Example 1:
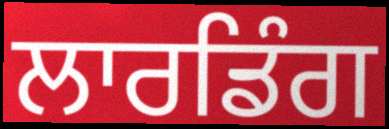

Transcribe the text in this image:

ਲਾਰਡਿੰਗ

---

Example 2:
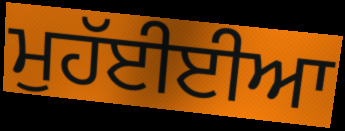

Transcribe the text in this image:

ਮੁਹੱਈਈਆ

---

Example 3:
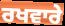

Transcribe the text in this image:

ਰਖਵਾਰੇ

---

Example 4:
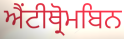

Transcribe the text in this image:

ਐਂਟੀਥ੍ਰੋਮਬਿਨ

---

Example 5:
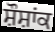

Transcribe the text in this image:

ਸ਼ੌਸ਼ਾਂਕ